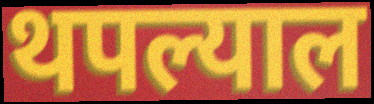
थपल्याल